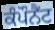
ਕੰਪੌਨੈਂਟ